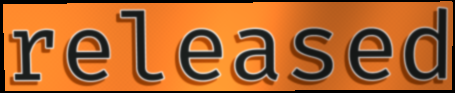
released